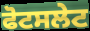
ਫੋਟਸਲੇਟ